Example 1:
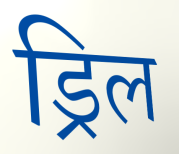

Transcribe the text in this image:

ड्रिल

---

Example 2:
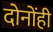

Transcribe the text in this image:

दोनोंही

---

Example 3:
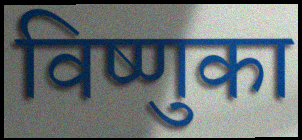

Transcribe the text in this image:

विष्णुका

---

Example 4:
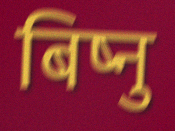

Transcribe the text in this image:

बिष्नु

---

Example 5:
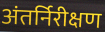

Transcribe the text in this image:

अंतर्निरीक्षण